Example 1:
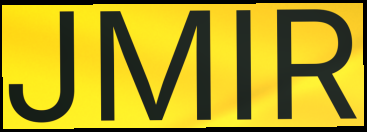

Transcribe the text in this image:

JMIR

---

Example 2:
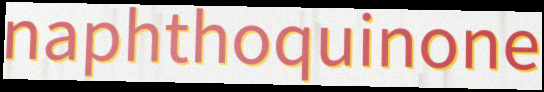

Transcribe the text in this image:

naphthoquinone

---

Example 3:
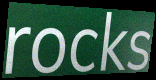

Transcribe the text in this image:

rocks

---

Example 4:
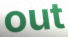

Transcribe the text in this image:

out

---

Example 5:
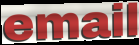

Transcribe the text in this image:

email